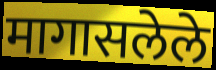
मागासलेले